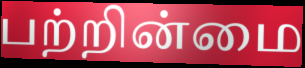
பற்றின்மை